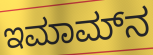
ಇಮಾಮ್‍ನ